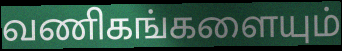
வணிகங்களையும்